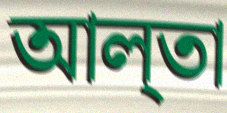
আল্‌তা